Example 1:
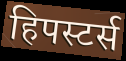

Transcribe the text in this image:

हिपस्टर्स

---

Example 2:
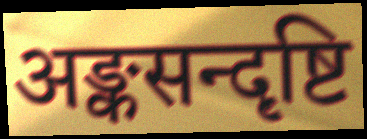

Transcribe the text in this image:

अङ्कसन्दृष्टि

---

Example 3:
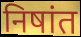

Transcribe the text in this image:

निषांत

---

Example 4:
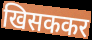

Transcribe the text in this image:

खिसककर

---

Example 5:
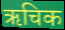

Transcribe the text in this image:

ऋचिक